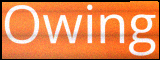
Owing